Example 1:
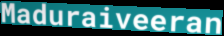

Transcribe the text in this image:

Maduraiveeran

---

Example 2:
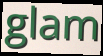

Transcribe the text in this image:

glam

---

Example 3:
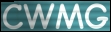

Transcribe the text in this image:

CWMG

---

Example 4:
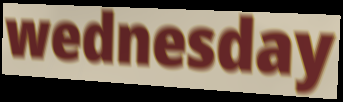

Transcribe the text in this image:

wednesday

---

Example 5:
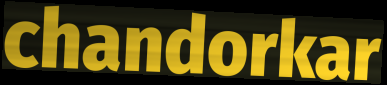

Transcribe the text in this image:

chandorkar